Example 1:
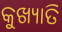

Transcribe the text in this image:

କୁଖ୍ୟାତି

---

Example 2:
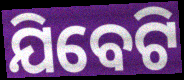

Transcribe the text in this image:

ଯିବେଟି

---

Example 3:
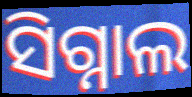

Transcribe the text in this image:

ସିଗ୍ନାଲ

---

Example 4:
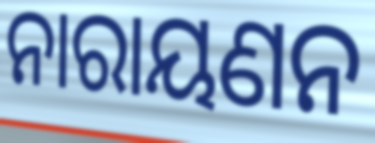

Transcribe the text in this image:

ନାରାୟଣନ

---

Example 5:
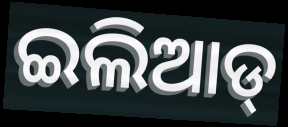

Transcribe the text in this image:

ଇଲିଆଡ୍